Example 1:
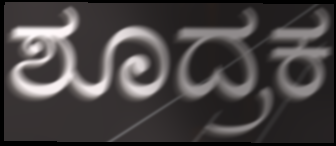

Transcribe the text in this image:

ಶೂದ್ರಕ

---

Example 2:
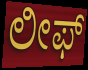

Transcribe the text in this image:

ಲೀಫ್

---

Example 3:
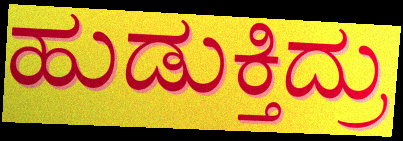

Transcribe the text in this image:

ಹುಡುಕ್ತಿದ್ರು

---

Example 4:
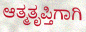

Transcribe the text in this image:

ಆತ್ಮತೃಪ್ತಿಗಾಗಿ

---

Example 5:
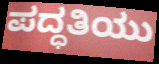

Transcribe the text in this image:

ಪದ್ಧತಿಯು